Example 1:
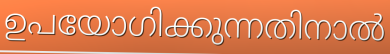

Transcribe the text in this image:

ഉപയോഗിക്കുന്നതിനാൽ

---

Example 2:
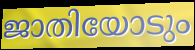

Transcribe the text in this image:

ജാതിയോടും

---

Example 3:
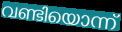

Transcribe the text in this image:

വണ്ടിയൊന്ന്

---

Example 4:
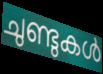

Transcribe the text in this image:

ചുണ്ടുകൾ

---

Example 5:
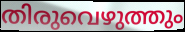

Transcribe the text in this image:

തിരുവെഴുത്തും